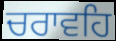
ਚਰਾਵਹਿ